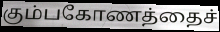
கும்பகோணத்தைச்